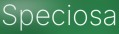
Speciosa